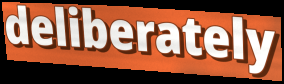
deliberately